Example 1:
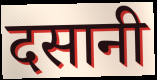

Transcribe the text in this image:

दसानी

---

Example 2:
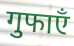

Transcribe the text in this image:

गुफाएँ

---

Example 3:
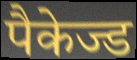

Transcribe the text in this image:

पैकेज्ड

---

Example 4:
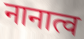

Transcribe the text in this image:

नानात्व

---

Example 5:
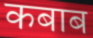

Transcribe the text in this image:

कबाब